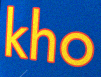
kho